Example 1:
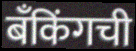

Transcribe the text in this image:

बँकिंगची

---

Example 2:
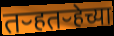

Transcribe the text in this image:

तऱ्हतऱ्हेच्या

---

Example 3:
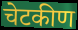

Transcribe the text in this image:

चेटकीण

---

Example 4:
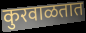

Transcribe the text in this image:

कुरवाळतात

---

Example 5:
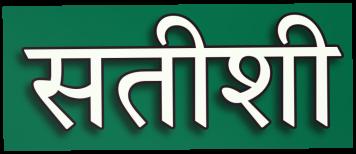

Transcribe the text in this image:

सतीशी